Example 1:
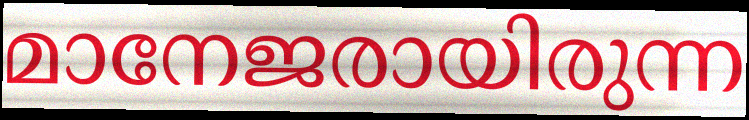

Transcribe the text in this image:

മാനേജരായിരുന്ന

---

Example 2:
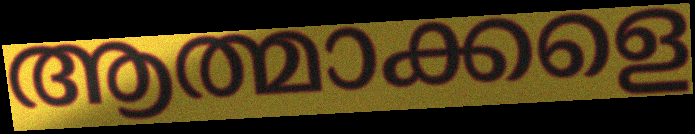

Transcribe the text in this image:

ആത്മാക്കളെ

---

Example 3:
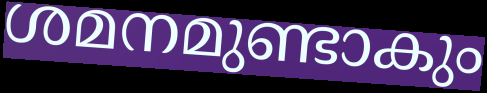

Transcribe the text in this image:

ശമനമുണ്ടാകും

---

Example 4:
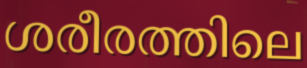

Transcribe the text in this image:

ശരീരത്തിലെ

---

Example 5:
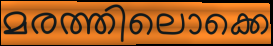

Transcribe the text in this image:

മരത്തിലൊക്കെ